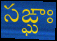
సఙ్ఘాః